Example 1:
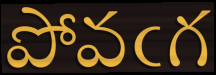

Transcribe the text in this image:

పోవఁగ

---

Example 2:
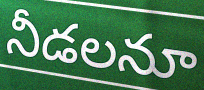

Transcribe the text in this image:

నీడలనూ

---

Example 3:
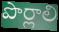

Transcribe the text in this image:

పొర్లాలి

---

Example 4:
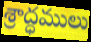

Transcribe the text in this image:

శ్రాద్ధములు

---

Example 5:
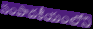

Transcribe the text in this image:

సంపాదకీయంలోని